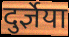
दुर्ज्ञेया